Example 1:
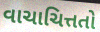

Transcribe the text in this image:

વાચાચિત્તતો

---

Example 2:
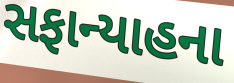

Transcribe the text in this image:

સફાન્યાહના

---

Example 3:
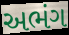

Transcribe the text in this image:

અભંગ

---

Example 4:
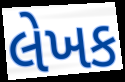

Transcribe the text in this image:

લેખક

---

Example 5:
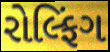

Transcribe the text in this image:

રોલ્ફિંગ